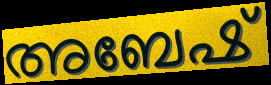
അബേഷ്